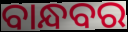
ବାନ୍ଧବର